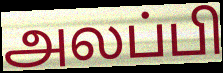
அலப்பி